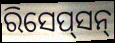
ରିସେପ୍‍ସନ୍